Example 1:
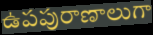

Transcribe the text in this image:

ఉపపురాణాలుగా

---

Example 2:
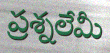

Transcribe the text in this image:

ప్రశ్నలేమీ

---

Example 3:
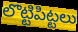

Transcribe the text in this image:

లొట్టిపిట్టలు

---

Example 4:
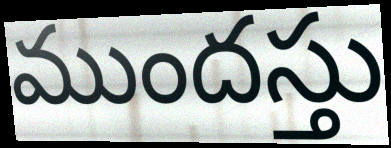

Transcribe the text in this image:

ముందస్తు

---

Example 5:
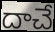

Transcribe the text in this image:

దాచే